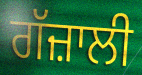
ਗੱਜ਼ਾਲੀ